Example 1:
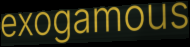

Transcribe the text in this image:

exogamous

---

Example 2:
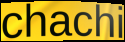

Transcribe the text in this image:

chachi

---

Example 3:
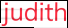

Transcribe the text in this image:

judith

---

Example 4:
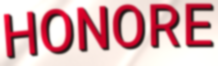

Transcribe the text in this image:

HONORE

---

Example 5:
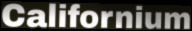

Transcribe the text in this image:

Californium